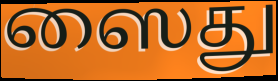
ஸைது